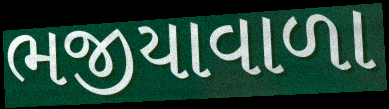
ભજીયાવાળા